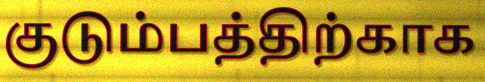
குடும்பத்திற்காக